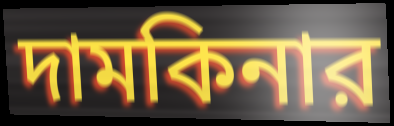
দামকিনার